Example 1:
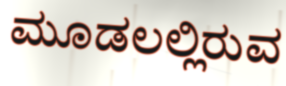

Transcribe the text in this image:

ಮೂಡಲಲ್ಲಿರುವ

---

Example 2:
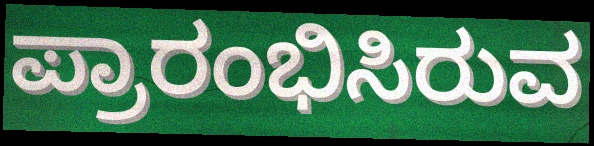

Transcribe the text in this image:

ಪ್ರಾರಂಭಿಸಿರುವ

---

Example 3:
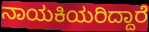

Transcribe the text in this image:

ನಾಯಕಿಯರಿದ್ದಾರೆ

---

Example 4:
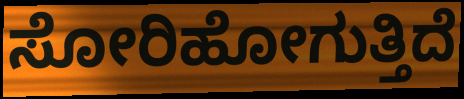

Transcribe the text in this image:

ಸೋರಿಹೋಗುತ್ತಿದೆ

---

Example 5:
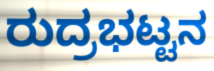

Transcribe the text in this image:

ರುದ್ರಭಟ್ಟನ